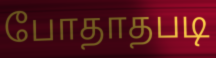
போதாதபடி